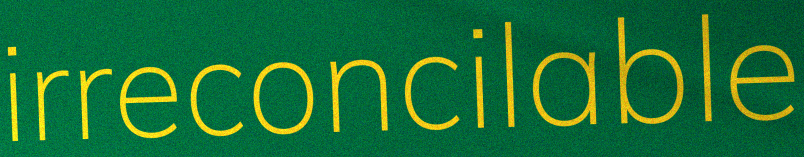
irreconcilable